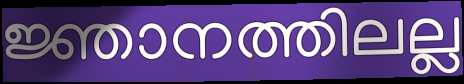
ജ്ഞാനത്തിലല്ല